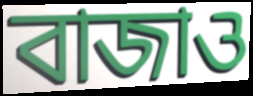
বাজাও